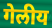
गेलीय